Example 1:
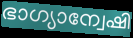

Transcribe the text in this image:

ഭാഗ്യാന്വേഷി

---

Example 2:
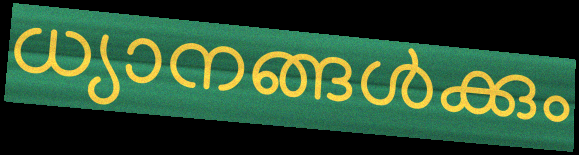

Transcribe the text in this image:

ധ്യാനങ്ങൾക്കും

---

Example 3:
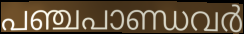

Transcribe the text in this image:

പഞ്ചപാണ്ഡവർ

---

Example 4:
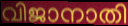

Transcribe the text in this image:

വിജാനാതി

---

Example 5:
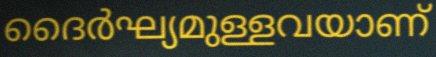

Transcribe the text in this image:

ദൈർഘ്യമുള്ളവയാണ്